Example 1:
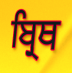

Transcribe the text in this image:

ਬ੍ਰਿਥ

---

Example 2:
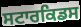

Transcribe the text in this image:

ਸਟਾਰਕਿਡਸ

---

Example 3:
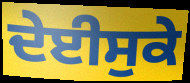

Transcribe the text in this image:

ਦੇਈਸੁਕੇ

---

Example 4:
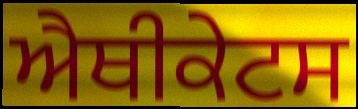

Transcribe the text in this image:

ਐਥੀਕੇਟਸ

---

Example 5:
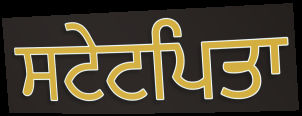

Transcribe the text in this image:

ਸਟੇਟਪਿਤਾ